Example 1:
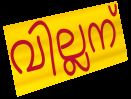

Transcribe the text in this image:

വില്ലന്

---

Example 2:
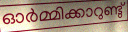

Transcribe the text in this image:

ഓർമ്മിക്കാറുണ്ടു്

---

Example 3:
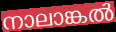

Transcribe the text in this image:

നാലാങ്കൽ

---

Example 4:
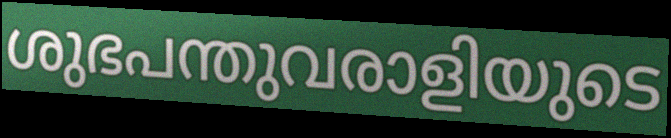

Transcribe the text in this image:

ശുഭപന്തുവരാളിയുടെ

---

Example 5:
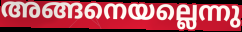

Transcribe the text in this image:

അങ്ങനെയല്ലെന്നു